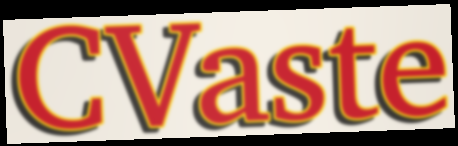
CVaste